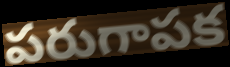
పరుగాపక